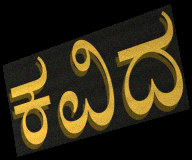
ಕವಿದ